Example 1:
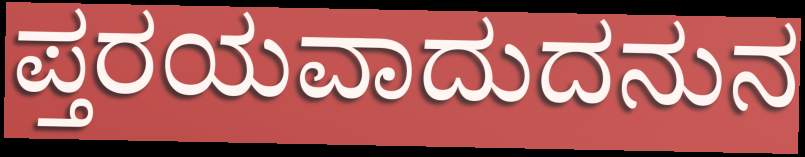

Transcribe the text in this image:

ಪ್ತರಯವಾದುದನುನ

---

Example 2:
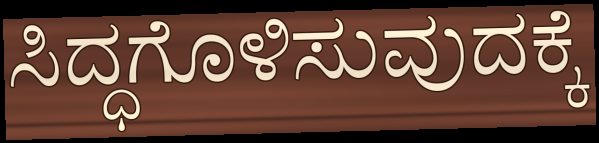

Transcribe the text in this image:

ಸಿದ್ಧಗೊಳಿಸುವುದಕ್ಕೆ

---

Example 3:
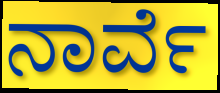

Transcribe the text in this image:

ನಾರ್ವೆ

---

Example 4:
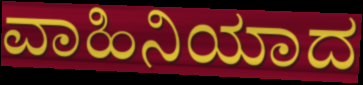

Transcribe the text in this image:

ವಾಹಿನಿಯಾದ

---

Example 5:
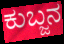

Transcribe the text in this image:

ಕುಬ್ಜನ